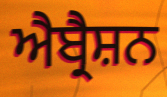
ਐਬ੍ਰੈਸ਼ਨ